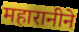
महारानीने